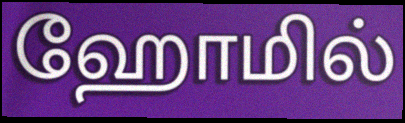
ஹோமில்